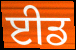
ਈਡ